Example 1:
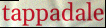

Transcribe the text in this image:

tappadale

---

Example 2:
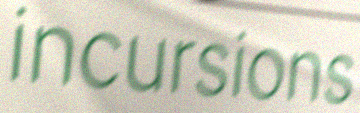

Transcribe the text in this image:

incursions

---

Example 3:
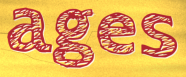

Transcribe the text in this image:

ages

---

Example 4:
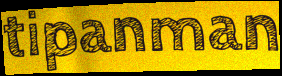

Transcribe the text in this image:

tipanman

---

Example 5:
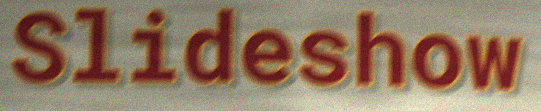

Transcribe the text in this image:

Slideshow